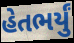
હેતભર્યું